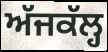
ਅੱਜਕੱਲ੍ਹ